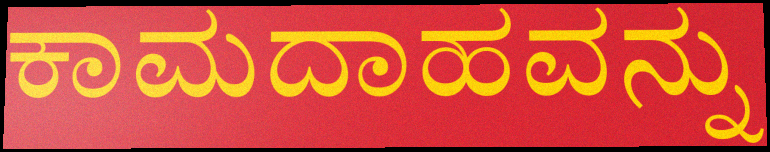
ಕಾಮದಾಹವನ್ನು